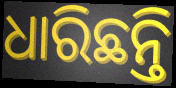
ଧାରିଛନ୍ତି